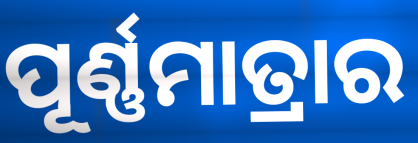
ପୂର୍ଣ୍ଣମାତ୍ରାର